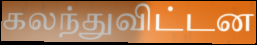
கலந்துவிட்டன